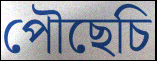
পৌছেচি